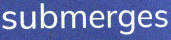
submerges